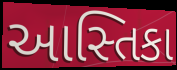
આસ્તિકા